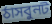
ঠাসবুনট